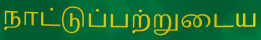
நாட்டுப்பற்றுடைய